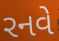
રનવે